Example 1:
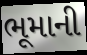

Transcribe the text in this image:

ભૂમાની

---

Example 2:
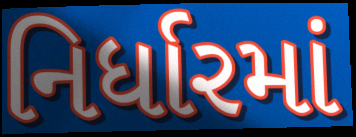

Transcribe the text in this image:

નિર્ધારમાં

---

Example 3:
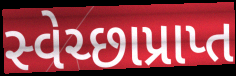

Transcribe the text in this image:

સ્વેચ્છાપ્રાપ્ત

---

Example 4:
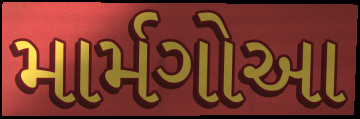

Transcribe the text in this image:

માર્મગોઆ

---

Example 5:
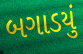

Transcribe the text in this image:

બગાડયું